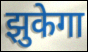
झुकेगा